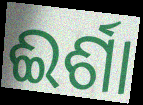
ଈର୍ଶା